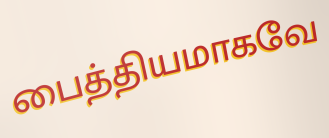
பைத்தியமாகவே